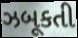
ઝબૂકતી